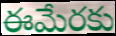
ఈమేరకు